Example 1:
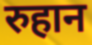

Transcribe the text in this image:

रुहान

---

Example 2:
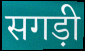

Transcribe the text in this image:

सगड़ी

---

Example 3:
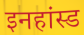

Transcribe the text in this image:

इनहांस्ड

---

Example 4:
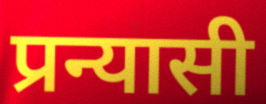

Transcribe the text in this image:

प्रन्यासी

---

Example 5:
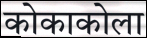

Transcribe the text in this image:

कोकाकोला